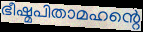
ഭീഷ്മപിതാമഹന്റെ